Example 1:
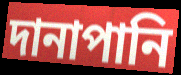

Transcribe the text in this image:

দানাপানি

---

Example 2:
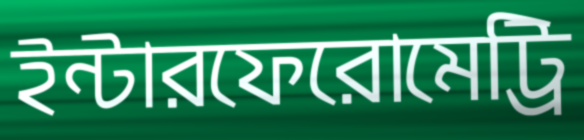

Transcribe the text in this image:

ইন্টারফেরোমেট্রি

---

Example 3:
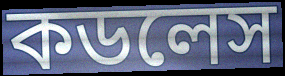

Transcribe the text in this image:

কডলেস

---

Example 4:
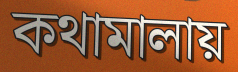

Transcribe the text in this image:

কথামালায়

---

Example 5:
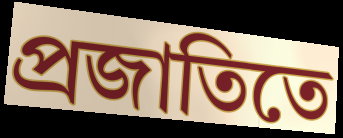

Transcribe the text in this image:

প্রজাতিতে